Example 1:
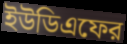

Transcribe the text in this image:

ইউডিএফের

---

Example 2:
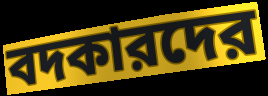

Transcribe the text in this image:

বদকারদের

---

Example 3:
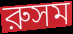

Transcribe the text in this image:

রুসম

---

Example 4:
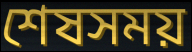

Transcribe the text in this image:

শেষসময়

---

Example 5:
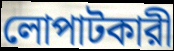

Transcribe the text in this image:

লোপাটকারী